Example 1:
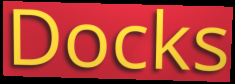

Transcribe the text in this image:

Docks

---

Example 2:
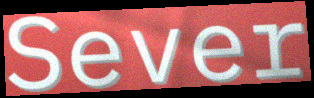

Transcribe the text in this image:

Sever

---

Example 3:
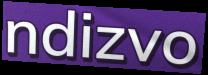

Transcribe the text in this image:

ndizvo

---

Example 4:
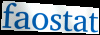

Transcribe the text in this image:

faostat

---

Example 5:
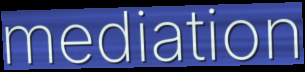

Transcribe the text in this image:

mediation